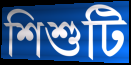
শিশুটি